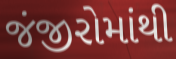
જંજીરોમાંથી